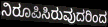
ನಿರೂಪಿಸಿರುವುದರಿಂದ